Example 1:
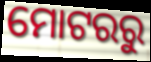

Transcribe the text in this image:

ମୋଟରରୁ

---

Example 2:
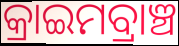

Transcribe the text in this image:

କ୍ରାଇମବ୍ରାଞ୍ଚ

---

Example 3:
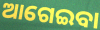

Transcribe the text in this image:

ଆଗେଇବା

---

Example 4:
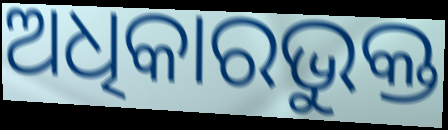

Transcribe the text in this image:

ଅଧିକାରଭୁକ୍ତ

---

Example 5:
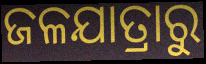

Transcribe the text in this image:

ଜଳଯାତ୍ରାରୁ